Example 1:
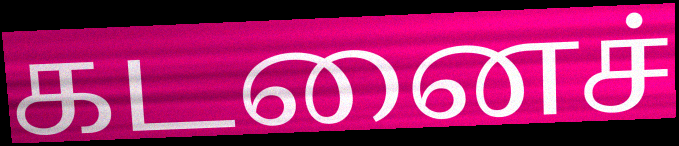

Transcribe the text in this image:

கடனைச்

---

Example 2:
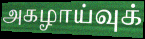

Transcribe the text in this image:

அகழாய்வுக்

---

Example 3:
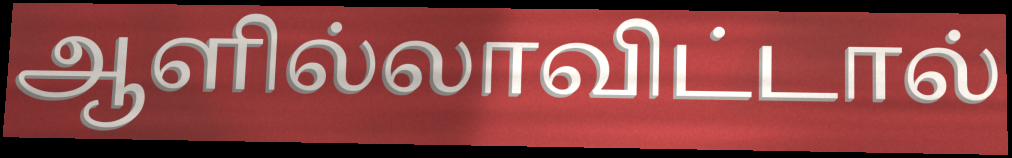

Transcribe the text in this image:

ஆளில்லாவிட்டால்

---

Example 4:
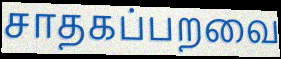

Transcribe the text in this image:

சாதகப்பறவை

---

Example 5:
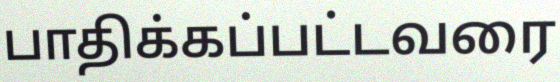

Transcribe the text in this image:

பாதிக்கப்பட்டவரை